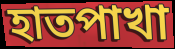
হাতপাখা